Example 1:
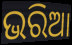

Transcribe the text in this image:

ଭରିଆ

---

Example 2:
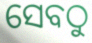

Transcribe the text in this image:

ସେବଠୁ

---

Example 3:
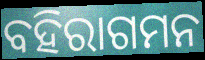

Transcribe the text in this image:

ବହିରାଗମନ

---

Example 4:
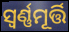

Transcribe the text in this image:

ସ୍ଵର୍ଣ୍ଣମୂର୍ତ୍ତି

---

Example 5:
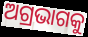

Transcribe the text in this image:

ଅଗ୍ରଭାଗକୁ